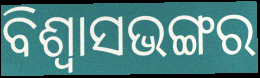
ବିଶ୍ଵାସଭଙ୍ଗର